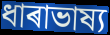
ধাৰাভাষ্য